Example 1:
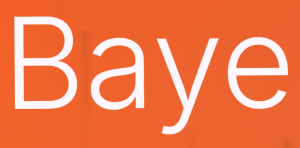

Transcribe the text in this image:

Baye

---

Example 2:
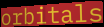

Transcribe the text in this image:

orbitals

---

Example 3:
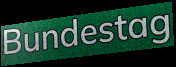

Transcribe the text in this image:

Bundestag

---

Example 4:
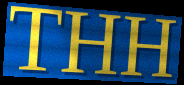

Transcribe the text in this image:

THH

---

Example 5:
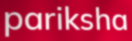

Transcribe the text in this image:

pariksha